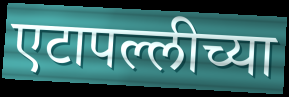
एटापल्लीच्या